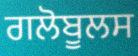
ਗਲੋਬੂਲਸ